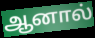
ஆனால்